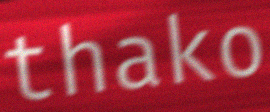
thako